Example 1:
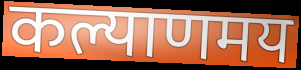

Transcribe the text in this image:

कल्याणमय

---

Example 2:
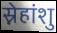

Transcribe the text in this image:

स्नेहांशु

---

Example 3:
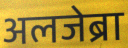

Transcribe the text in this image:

अलजेब्रा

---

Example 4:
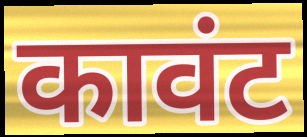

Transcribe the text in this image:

कावंट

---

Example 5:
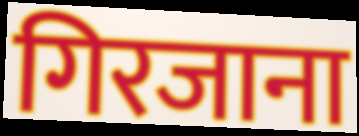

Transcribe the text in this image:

गिरजाना